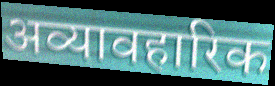
अव्यावहारिक